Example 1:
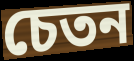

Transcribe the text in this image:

চেতন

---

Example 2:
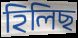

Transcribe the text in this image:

হিলিছ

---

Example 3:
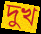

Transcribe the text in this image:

দুখ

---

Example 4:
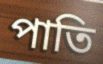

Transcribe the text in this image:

পাতি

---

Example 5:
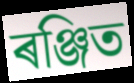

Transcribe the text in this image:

ৰঞ্জিত